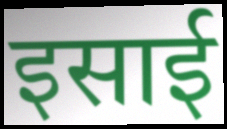
इसाई